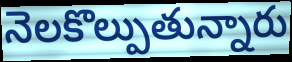
నెలకొల్పుతున్నారు